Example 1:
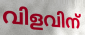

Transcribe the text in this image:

വിളവിന്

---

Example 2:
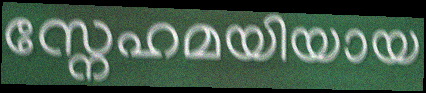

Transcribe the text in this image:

സ്നേഹമയിയായ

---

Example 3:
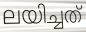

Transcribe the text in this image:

ലയിച്ചത്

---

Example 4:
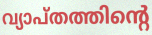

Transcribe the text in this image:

വ്യാപ്തത്തിന്റെ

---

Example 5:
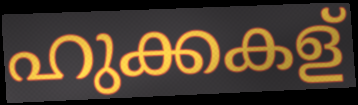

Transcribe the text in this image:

ഹുക്കകള്